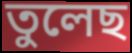
তুলেছ